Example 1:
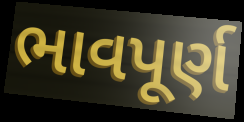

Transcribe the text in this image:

ભાવપૂર્ણ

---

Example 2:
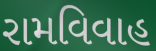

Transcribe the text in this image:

રામવિવાહ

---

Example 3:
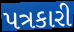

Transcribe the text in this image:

પત્રકારી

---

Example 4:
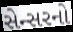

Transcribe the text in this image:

સેન્સરનો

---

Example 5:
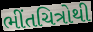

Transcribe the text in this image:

ભીંતચિત્રોથી